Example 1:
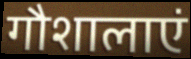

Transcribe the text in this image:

गौशालाएं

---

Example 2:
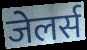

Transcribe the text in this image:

जेलर्स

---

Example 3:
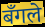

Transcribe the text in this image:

बँगले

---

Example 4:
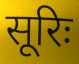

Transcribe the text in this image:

सूरिः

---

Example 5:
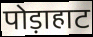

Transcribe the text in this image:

पोड़ाहाट